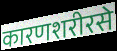
कारणशरीरसे